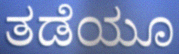
ತಡೆಯೂ